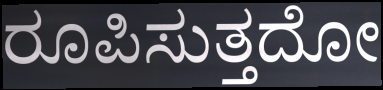
ರೂಪಿಸುತ್ತದೋ